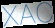
XAC